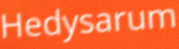
Hedysarum